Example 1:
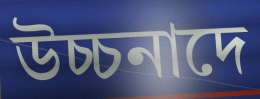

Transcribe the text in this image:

উচ্চনাদে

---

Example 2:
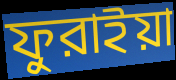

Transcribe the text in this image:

ফুরাইয়া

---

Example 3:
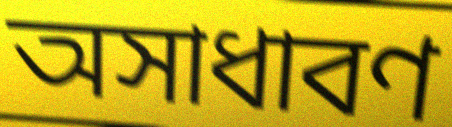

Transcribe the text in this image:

অসাধাবণ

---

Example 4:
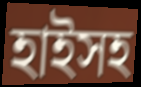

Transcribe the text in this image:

হাইসহ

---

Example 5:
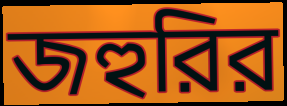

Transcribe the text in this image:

জহুরির